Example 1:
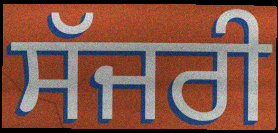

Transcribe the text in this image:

ਸੱਜਰੀ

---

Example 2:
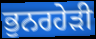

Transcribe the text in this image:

ਭੁਨਰਹੇੜੀ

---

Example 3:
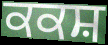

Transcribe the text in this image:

ਕਕਸ਼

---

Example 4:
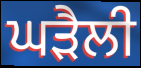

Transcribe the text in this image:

ਘੜੈਲੀ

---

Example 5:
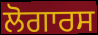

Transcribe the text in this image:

ਲੋਗਾਰਸ